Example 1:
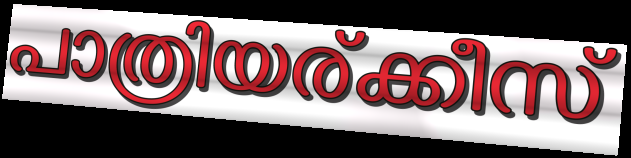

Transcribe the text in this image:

പാത്രിയര്ക്കീസ്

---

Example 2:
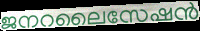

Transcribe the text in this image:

ജനറലൈസേഷൻ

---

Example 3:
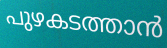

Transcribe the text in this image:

പുഴകടത്താൻ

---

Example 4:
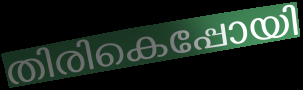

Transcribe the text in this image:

തിരികെപ്പോയി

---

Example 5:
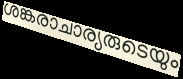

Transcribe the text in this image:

ശങ്കരാചാര്യരുടെയും